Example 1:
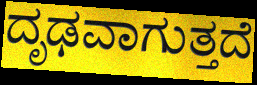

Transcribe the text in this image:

ದೃಢವಾಗುತ್ತದೆ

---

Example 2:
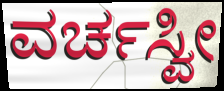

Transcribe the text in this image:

ವರ್ಚಸ್ವೀ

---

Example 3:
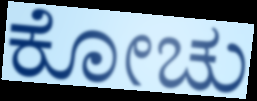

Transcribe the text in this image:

ಕೋಚು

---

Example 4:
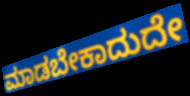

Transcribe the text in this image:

ಮಾಡಬೇಕಾದುದೇ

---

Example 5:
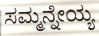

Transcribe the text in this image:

ಸಮ್ಮನ್ನೇಯ್ಯ